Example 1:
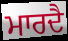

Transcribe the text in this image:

ਮਾਰਦੈ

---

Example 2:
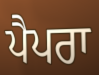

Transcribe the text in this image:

ਪੈਪਰਾ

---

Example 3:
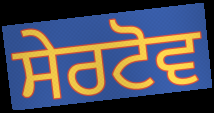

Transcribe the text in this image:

ਸੇਰਟੋਵ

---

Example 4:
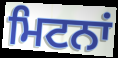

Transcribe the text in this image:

ਮਿਟਨਾਂ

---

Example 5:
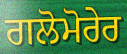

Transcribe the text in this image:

ਗਲੋਮੋਰੇਰ